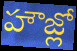
హౌజ్లో